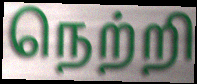
நெற்றி